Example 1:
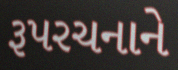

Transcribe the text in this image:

રૂપરચનાને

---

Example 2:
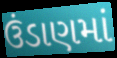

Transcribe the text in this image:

ઉંડાણમાં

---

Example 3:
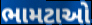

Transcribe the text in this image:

ભામટાઓ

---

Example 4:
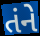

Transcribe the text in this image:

તંને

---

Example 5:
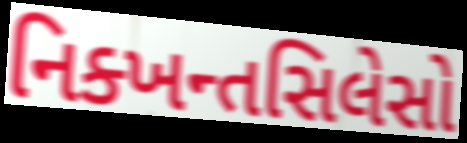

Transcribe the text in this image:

નિક્ખન્તસિલેસો